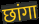
छांगा